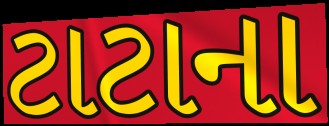
ટાટાના